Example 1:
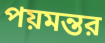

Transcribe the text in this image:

পয়মন্তর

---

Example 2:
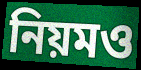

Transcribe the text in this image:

নিয়মও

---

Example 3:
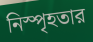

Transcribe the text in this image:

নিস্পৃহতার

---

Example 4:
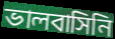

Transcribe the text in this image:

ভালবাসিনি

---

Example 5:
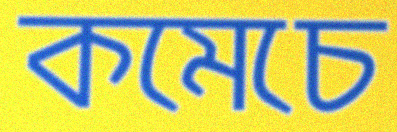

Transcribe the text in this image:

কমেচে